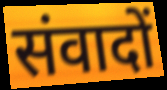
संवादों